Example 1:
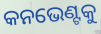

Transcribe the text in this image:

କନଭେଣ୍ଟକୁ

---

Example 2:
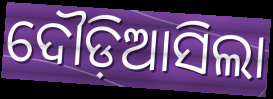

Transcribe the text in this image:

ଦୌଡ଼ିଆସିଲା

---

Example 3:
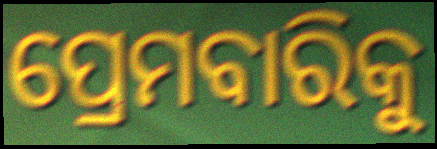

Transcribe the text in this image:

ପ୍ରେମବାରିକୁ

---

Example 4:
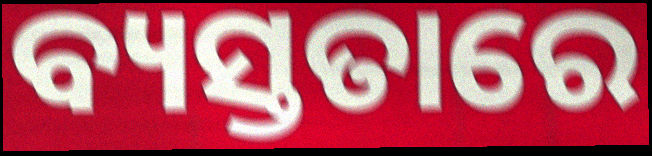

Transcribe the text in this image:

ବ୍ୟସ୍ତତାରେ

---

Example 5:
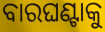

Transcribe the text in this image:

ବାରଘଣ୍ଟାକୁ